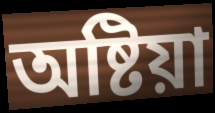
অষ্টিয়া